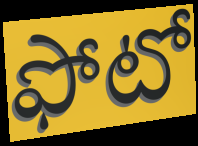
ఫోటో